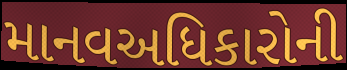
માનવઅધિકારોની